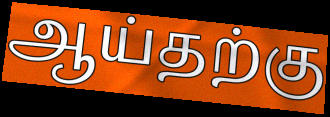
ஆய்தற்கு